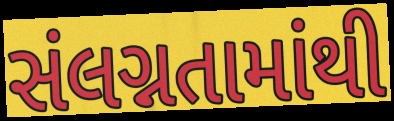
સંલગ્નતામાંથી